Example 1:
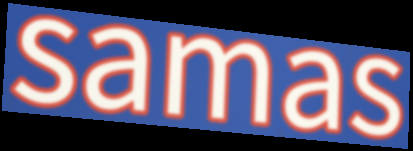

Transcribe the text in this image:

samas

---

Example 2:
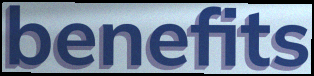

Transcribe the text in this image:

benefits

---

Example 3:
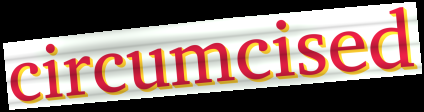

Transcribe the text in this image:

circumcised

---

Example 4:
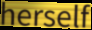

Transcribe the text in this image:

herself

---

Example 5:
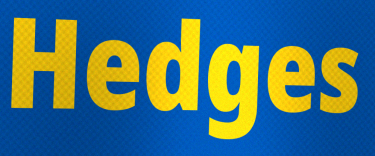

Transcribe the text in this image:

Hedges